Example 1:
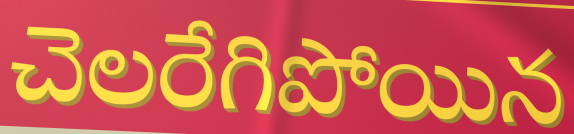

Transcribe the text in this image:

చెలరేగిపోయిన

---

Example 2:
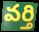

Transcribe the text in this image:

వర్తి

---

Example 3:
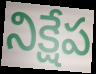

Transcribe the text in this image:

నిక్షేప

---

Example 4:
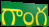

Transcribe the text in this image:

గాంగ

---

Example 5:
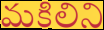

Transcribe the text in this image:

మకిలిని